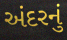
અંદરનું